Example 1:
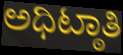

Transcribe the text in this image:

ಅಧಿಟ್ಠಾತಿ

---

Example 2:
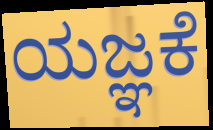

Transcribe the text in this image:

ಯಜ್ಞಕೆ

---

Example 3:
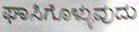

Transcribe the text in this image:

ಘಾಸಿಗೊಳ್ಳುವುದು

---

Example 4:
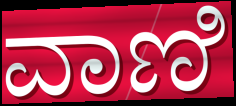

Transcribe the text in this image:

ವಾಣಿ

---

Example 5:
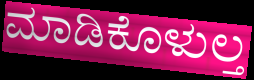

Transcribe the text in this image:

ಮಾಡಿಕೊಳುಲ್ತ